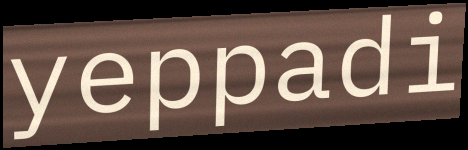
yeppadi